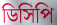
ডিসিপি